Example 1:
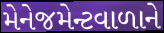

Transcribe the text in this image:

મેનેજમેન્ટવાળાને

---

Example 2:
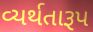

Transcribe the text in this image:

વ્યર્થતારૂપ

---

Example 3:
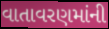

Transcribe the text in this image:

વાતાવરણમાંની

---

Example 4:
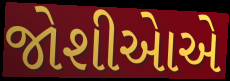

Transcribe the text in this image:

જોશીએાએ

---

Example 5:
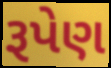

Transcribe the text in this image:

રૂપેણ